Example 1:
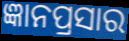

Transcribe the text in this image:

ଜ୍ଞାନପ୍ରସାର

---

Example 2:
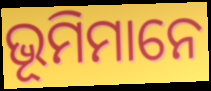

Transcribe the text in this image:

ଭୂମିମାନେ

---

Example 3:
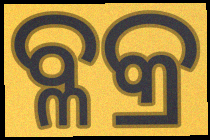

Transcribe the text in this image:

ବ୍ଳକ୍ର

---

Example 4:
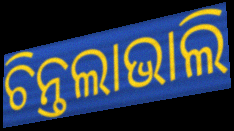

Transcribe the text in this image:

ଚିନ୍ତଲାଭାଲି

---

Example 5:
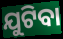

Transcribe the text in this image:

ଯୁଟିବା